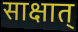
साक्षात्